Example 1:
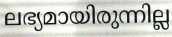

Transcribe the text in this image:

ലഭ്യമായിരുന്നില്ല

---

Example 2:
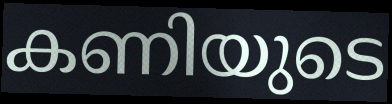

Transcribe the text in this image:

കണിയുടെ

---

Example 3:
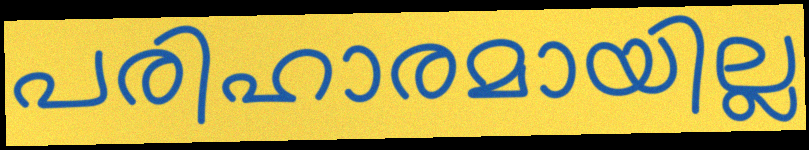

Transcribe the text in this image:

പരിഹാരമായില്ല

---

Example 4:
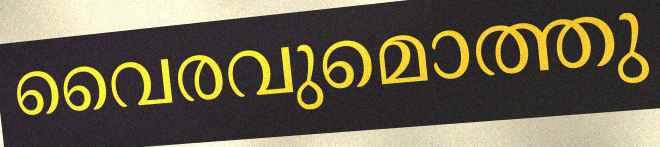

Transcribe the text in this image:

വൈരവുമൊത്തു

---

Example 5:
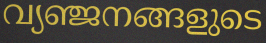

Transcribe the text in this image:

വ്യഞ്ജനങ്ങളുടെ